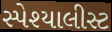
સ્પેશ્યાલીસ્ટ